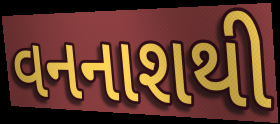
વનનાશથી